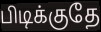
பிடிக்குதே